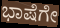
ಭಾಷೆಗೇ